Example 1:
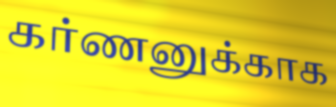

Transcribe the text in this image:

கர்ணனுக்காக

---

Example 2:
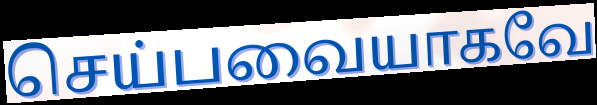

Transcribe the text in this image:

செய்பவையாகவே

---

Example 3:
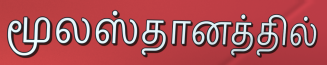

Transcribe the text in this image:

மூலஸ்தானத்தில்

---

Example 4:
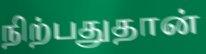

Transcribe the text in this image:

நிற்பதுதான்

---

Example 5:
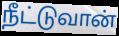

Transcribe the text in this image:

நீட்டுவான்